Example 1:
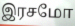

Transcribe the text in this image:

இரசமோ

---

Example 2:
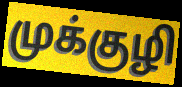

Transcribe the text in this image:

முக்குழி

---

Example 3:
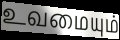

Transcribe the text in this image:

உவமையும்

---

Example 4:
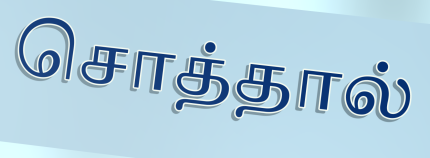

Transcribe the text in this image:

சொத்தால்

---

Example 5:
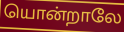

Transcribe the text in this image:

யொன்றாலே